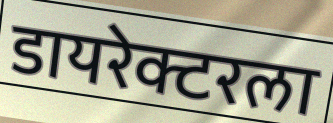
डायरेक्टरला